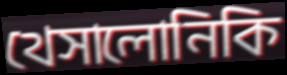
থেসালোনিকি